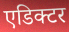
एडिक्टर